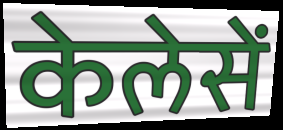
केलेसें